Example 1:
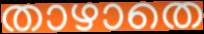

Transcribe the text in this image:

താഴാതെ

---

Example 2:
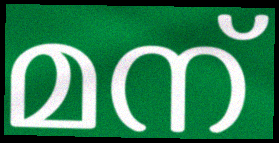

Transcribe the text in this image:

മന്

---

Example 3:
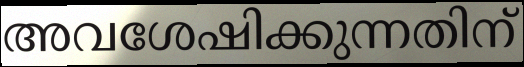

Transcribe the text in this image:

അവശേഷിക്കുന്നതിന്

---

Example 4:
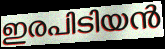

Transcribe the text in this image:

ഇരപിടിയൻ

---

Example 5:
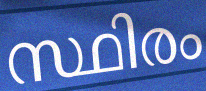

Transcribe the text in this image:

സ്ഥിരം